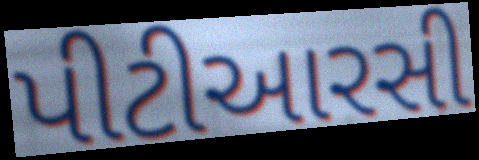
પીટીઆરસી